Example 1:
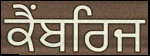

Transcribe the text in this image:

ਕੈਂਬਰਿਜ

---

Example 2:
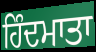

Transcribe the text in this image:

ਹਿੰਦਮਾਤਾ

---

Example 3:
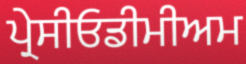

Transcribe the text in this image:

ਪ੍ਰੇਸੀਓਡੀਮੀਅਮ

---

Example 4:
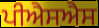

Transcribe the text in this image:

ਪੀਐਸਐਸ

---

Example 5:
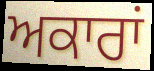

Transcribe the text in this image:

ਅਕਾਰਾਂ